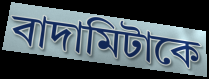
বাদামিটাকে